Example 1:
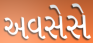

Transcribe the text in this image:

અવસેસે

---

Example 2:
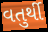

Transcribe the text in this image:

વતુર્થી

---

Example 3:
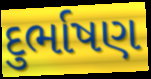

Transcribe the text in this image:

દુર્ભાષણ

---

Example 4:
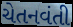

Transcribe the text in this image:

ચેતનવંતી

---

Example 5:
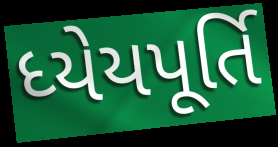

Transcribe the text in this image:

ધ્યેયપૂર્તિ